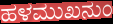
ಹಳಮುಖನುಂ